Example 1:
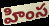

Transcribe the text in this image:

హింస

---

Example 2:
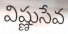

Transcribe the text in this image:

విష్ణుసేవ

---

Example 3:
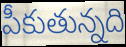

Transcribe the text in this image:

పీకుతున్నది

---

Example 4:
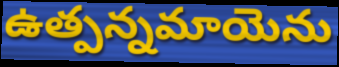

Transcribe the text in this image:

ఉత్పన్నమాయెను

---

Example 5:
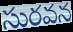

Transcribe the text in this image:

సురవన